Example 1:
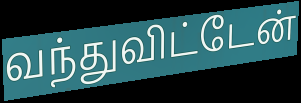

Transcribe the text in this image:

வந்துவிட்டேன்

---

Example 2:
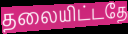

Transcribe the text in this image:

தலையிட்டதே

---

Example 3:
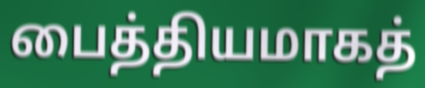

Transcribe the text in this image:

பைத்தியமாகத்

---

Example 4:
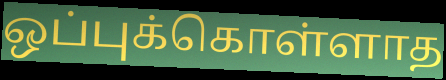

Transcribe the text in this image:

ஒப்புக்கொள்ளாத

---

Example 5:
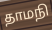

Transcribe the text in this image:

தாமநி